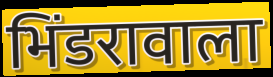
भिंडरावाला